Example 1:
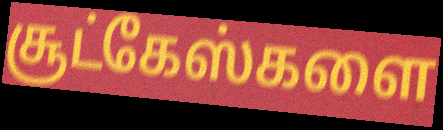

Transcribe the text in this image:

சூட்கேஸ்களை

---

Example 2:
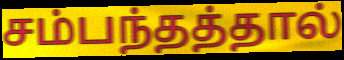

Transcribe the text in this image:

சம்பந்தத்தால்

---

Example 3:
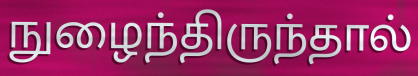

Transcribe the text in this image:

நுழைந்திருந்தால்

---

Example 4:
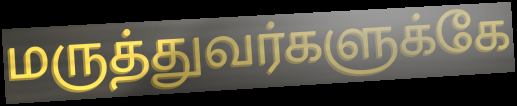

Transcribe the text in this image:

மருத்துவர்களுக்கே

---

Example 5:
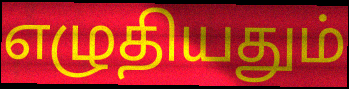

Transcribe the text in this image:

எழுதியதும்